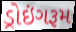
ડ્રોઇંગરૂમ